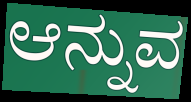
ಆನ್ನುವ